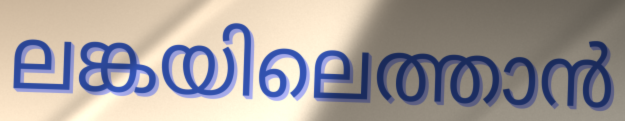
ലങ്കയിലെത്താൻ